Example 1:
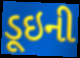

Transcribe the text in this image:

ડૂઇની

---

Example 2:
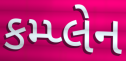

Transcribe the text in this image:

કમ્પ્લેન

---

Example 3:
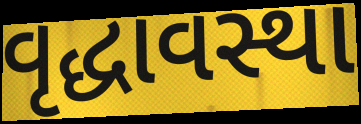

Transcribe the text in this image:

વૃદ્ધાવસ્થા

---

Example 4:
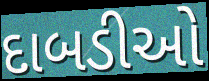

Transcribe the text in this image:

દાબડીઓ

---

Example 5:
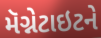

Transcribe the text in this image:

મૅગ્નેટાઇટને